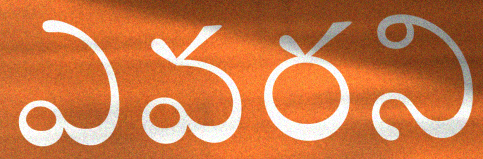
ఎవరని